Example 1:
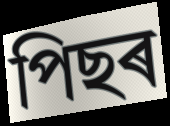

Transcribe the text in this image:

পিছৰ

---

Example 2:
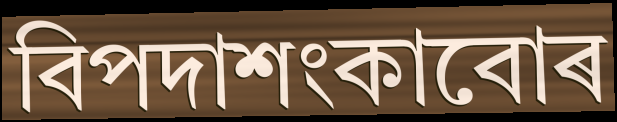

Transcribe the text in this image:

বিপদাশংকাবোৰ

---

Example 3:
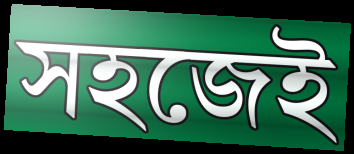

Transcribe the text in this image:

সহজেই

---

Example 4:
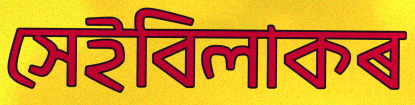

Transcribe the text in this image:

সেইবিলাকৰ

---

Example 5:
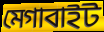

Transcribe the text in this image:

মেগাবাইট